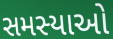
સમસ્યાઓ